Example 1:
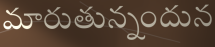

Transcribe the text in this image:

మారుతున్నందున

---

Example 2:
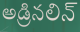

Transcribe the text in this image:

అడ్రినలిన్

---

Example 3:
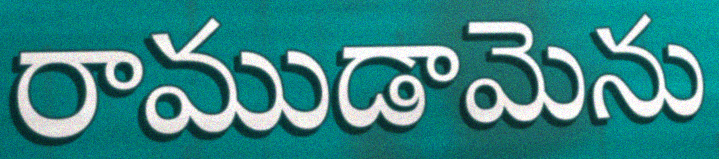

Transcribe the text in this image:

రాముడామెను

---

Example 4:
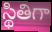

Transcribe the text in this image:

స్థితిగా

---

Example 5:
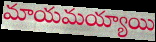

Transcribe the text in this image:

మాయమయ్యాయి